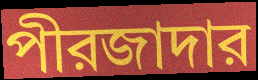
পীরজাদার